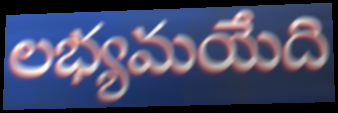
లభ్యమయేది